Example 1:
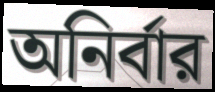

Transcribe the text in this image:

অনির্বার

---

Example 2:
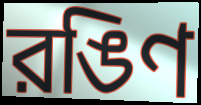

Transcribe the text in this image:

রঙিণ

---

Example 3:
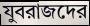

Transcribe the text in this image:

যুবরাজদের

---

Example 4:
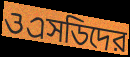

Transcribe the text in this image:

ওএসডিদের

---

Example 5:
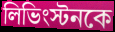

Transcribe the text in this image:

লিভিংস্টনকে